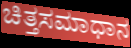
ಚಿತ್ತಸಮಾಧಾನ